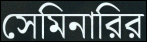
সেমিনারির